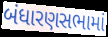
બંધારણસભામાં